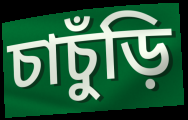
চাচুঁড়ি